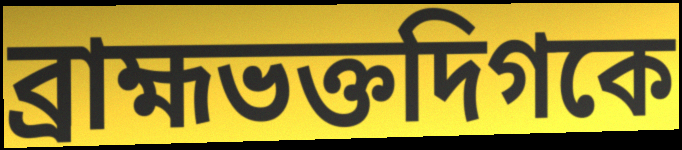
ব্রাহ্মভক্তদিগকে